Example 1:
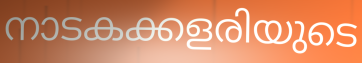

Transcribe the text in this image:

നാടകക്കളരിയുടെ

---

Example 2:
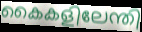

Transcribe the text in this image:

കൈകളിലേന്തി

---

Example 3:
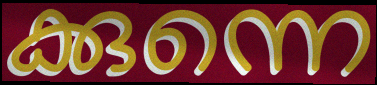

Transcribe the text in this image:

ക്കുന്നെ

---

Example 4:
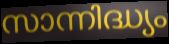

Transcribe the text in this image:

സാന്നിദ്ധ്യം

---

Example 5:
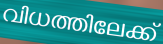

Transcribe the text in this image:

വിധത്തിലേക്ക്